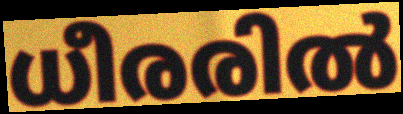
ധീരരിൽ